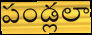
పండ్లలా